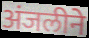
अंजलीने